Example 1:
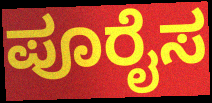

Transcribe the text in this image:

ಪೂರೈಸ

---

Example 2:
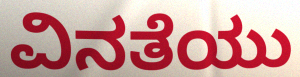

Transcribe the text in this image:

ವಿನತೆಯು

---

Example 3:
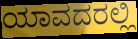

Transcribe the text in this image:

ಯಾವದರಲ್ಲಿ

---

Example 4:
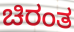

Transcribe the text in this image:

ಚಿರಂತ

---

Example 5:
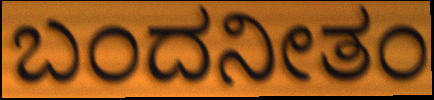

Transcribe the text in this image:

ಬಂದನೀತಂ